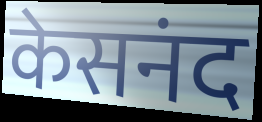
केसनंद